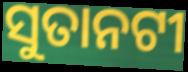
ସୁତାନଟୀ